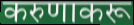
करुणाकरू